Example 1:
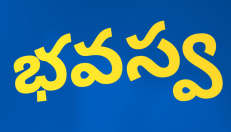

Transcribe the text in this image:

భవస్వ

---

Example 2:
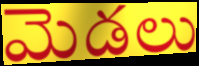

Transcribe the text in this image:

మెడలు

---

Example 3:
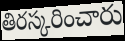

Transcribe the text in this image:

తిరస్కరించారు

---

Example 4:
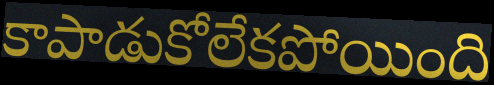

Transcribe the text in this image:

కాపాడుకోలేకపోయింది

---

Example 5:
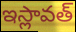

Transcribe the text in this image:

ఇస్లావత్